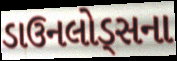
ડાઉનલોડ્સના